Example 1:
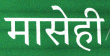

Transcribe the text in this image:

मासेही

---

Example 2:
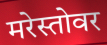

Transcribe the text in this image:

मरेस्तोवर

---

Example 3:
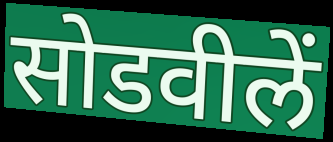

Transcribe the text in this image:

सोडवीलें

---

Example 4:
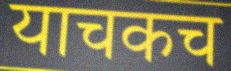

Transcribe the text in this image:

याचकच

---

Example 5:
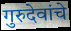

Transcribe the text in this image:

गुरुदेवांचे